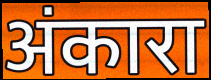
अंकारा